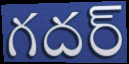
గదర్